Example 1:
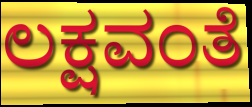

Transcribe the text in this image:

ಲಕ್ಷವಂತೆ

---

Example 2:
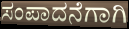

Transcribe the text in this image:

ಸಂಪಾದನೆಗಾಗಿ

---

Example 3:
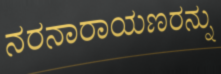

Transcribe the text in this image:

ನರನಾರಾಯಣರನ್ನು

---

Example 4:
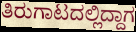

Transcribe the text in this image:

ತಿರುಗಾಟದಲ್ಲಿದ್ದಾಗ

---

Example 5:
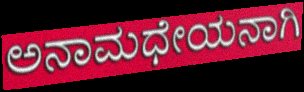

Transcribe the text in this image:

ಅನಾಮಧೇಯನಾಗಿ